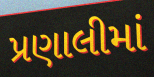
પ્રણાલીમાં